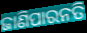
ଜାଣିପାରନତି